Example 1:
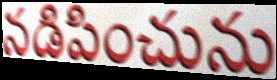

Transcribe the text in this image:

నడిపించును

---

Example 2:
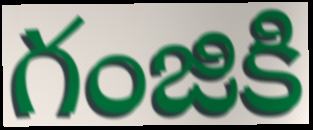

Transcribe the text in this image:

గంజికి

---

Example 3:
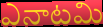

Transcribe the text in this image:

ఎనాటమి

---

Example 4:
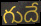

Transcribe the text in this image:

గుదే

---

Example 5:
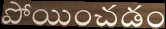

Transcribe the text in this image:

పోయించడం